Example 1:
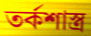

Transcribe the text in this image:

তর্কশাস্ত্র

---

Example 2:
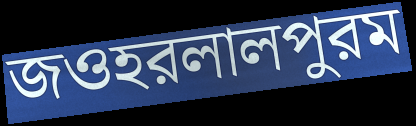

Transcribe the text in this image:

জওহরলালপুরম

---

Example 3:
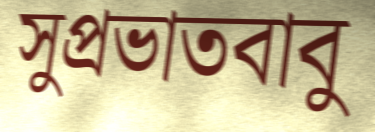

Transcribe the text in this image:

সুপ্রভাতবাবু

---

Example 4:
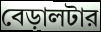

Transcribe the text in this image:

বেড়ালটার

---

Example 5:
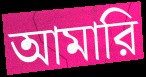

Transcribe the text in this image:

আমারি